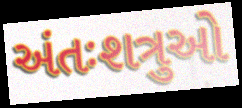
અંતઃશત્રુઓ